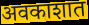
अवकाशात